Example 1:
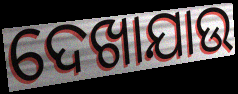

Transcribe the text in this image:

ଦେଖାଯାଉ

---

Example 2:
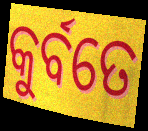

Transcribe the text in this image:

କୁର୍ବତେ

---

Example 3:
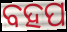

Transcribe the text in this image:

ବହପ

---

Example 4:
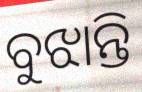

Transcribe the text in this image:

ବୁଝାନ୍ତି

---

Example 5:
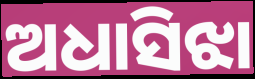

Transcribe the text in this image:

ଅଧାସିଝା